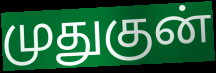
முதுகுன்